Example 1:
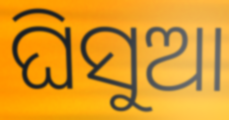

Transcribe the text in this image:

ଘିସୁଆ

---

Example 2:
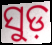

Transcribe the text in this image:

ସୁଡ଼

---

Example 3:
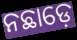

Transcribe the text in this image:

ନଛାଡ଼େ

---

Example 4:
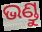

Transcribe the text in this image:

ଭଣ୍ଡୁ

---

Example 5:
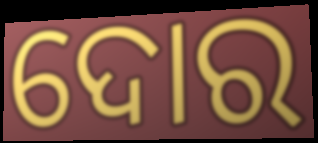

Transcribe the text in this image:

ଦୋର